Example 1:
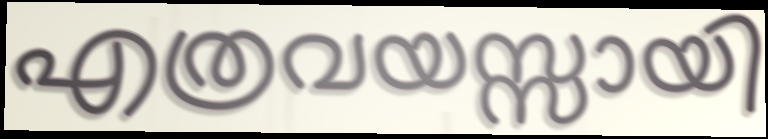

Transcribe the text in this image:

എത്രവയസ്സായി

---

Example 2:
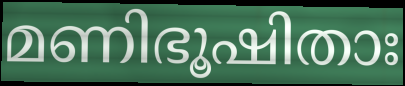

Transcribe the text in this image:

മണിഭൂഷിതാഃ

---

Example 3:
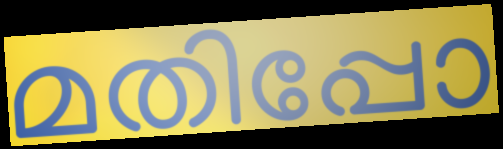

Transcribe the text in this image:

മതിപ്പോ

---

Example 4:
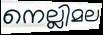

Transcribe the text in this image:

നെല്ലിമല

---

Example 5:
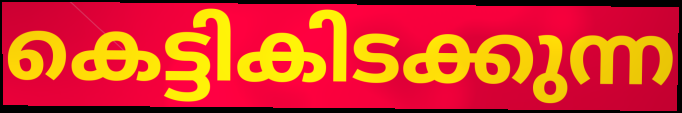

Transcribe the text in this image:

കെട്ടികിടക്കുന്ന